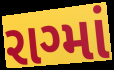
રાગ્માં